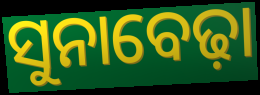
ସୁନାବେଢ଼ା